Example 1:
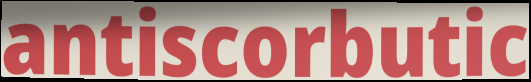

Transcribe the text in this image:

antiscorbutic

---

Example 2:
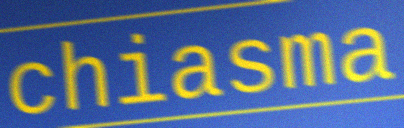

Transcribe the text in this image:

chiasma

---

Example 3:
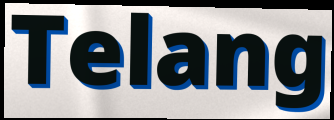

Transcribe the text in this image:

Telang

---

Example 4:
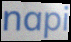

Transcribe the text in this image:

napi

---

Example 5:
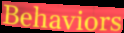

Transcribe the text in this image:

Behaviors